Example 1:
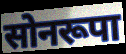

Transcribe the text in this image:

सोनरूपा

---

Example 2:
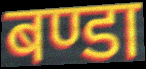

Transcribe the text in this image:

बण्डा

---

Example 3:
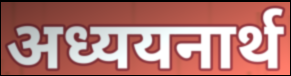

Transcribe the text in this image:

अध्ययनार्थ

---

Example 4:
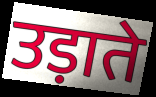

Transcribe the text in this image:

उड़ाते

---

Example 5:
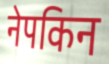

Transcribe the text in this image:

नेपकिन